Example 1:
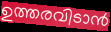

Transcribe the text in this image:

ഉത്തരവിടാൻ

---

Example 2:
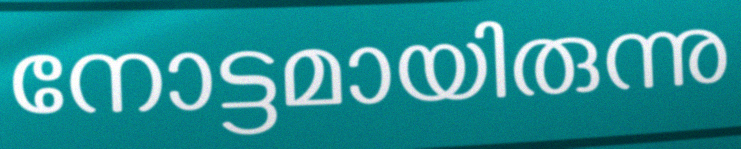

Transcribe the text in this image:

നോട്ടമായിരുന്നു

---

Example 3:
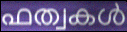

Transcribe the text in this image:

ഫത്വകൾ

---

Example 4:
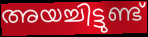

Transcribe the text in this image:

അയച്ചിട്ടുണ്ട്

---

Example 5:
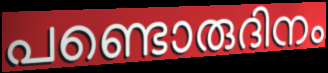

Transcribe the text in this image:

പണ്ടൊരുദിനം